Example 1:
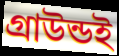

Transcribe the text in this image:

গ্রাউন্ডই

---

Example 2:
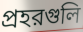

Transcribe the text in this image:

প্রহরগুলি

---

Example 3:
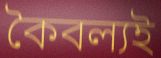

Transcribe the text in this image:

কৈবল্যই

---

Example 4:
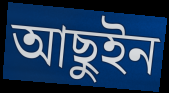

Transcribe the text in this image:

আছুইন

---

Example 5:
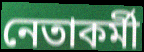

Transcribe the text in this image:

নেতাকর্মী